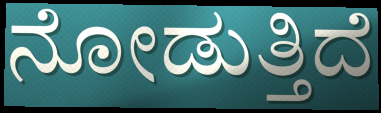
ನೋಡುತ್ತಿದೆ